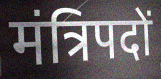
मंत्रिपदों